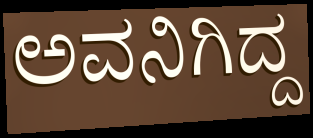
ಅವನಿಗಿದ್ದ